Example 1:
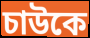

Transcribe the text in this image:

চাউকে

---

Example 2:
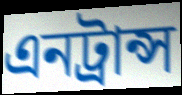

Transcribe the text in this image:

এনট্রান্স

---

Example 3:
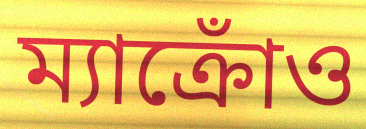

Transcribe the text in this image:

ম্যাক্রোঁও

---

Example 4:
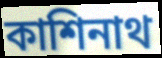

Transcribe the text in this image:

কাশিনাথ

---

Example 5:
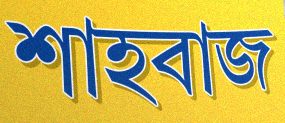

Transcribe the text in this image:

শাহবাজ